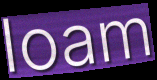
loam